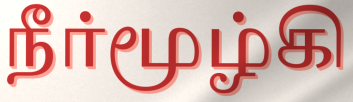
நீர்மூழ்கி